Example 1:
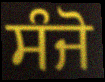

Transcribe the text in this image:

ਸੰਜੋ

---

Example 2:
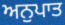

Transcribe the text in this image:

ਅਨੁਪਾਤ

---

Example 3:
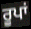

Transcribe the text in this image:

ਰੂਪਾਂ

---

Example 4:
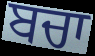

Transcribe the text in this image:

ਬਚਾ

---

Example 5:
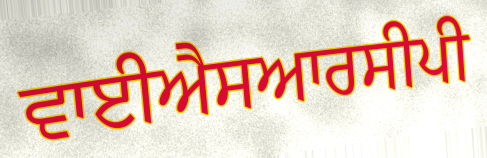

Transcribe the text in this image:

ਵਾਈਐਸਆਰਸੀਪੀ